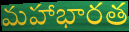
మహాభారత